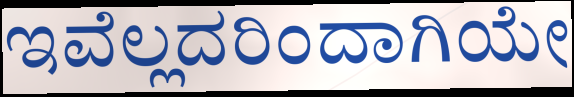
ಇವೆಲ್ಲದರಿಂದಾಗಿಯೇ